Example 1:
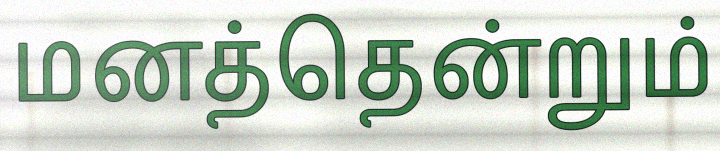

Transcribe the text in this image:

மனத்தென்றும்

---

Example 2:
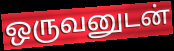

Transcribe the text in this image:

ஒருவனுடன்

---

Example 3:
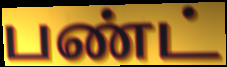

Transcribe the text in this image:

பண்ட்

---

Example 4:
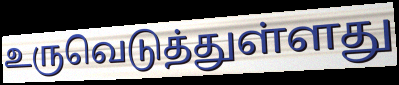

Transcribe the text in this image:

உருவெடுத்துள்ளது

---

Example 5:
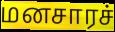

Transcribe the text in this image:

மனசாரச்